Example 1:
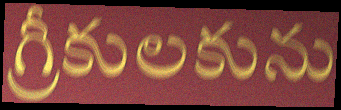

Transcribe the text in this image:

గ్రీకులకును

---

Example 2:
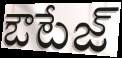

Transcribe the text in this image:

ఔటేజ్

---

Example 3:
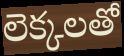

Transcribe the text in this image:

లెక్కలతో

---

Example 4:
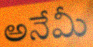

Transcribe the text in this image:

అనేమీ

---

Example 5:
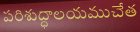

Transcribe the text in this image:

పరిశుద్ధాలయముచేత